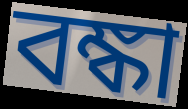
বঙ্কা